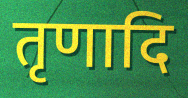
तृणादि